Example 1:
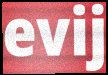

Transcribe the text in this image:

evij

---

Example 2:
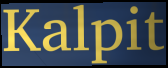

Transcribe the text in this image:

Kalpit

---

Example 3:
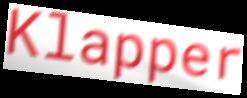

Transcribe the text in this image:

Klapper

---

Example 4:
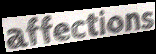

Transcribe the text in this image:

affections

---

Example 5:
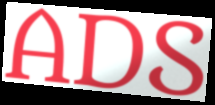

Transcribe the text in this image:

ADS